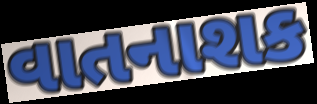
વાતનાશક